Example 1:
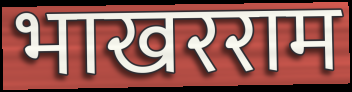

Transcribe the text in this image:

भाखरराम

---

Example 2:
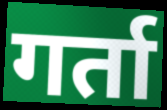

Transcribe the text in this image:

गर्ता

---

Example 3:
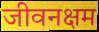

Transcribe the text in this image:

जीवनक्षम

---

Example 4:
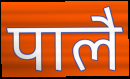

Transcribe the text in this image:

पालै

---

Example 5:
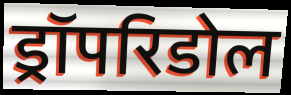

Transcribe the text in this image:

ड्रॉपरिडोल